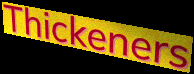
Thickeners